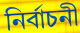
নিৰ্বাচনী